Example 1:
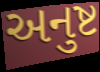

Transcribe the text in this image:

અનુષ્ટ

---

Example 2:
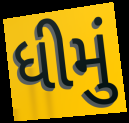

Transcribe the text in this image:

ધીમું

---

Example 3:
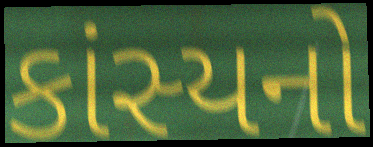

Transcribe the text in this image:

કાંસ્યનો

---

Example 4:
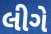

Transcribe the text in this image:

લીગે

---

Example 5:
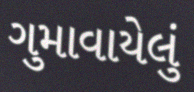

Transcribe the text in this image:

ગુમાવાયેલું